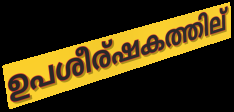
ഉപശീര്ഷകത്തില്